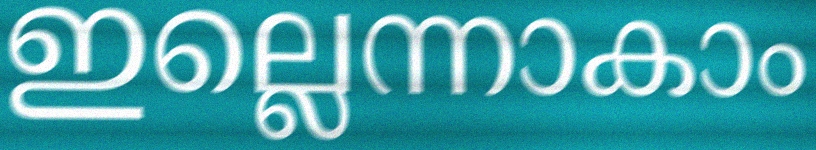
ഇല്ലെന്നാകാം